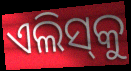
ଏଲିସ୍‌କୁ